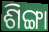
ଶିଙ୍ଗା